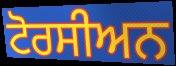
ਟੋਰਸੀਅਨ